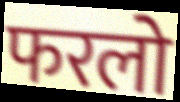
फरलो